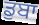
ਡੁਬਾ